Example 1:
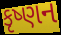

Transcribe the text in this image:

કૃષ્ણન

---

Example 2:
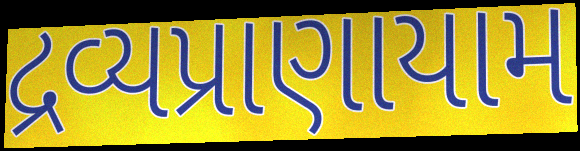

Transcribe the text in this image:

દ્રવ્યપ્રાણાયામ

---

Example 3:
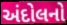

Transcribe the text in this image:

અંદોલનો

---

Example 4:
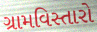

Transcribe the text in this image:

ગ્રામવિસ્તારો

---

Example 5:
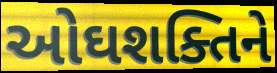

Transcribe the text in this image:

ઓઘશક્તિને